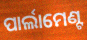
ପାର୍ଲାମେଣ୍ଟ